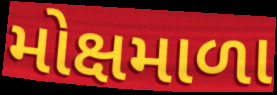
મોક્ષમાળા